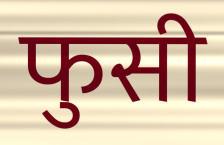
फुसी